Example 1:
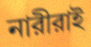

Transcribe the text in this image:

নারীরাই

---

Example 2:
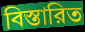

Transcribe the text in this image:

বিস্তারিত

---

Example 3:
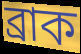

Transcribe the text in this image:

ব্রাক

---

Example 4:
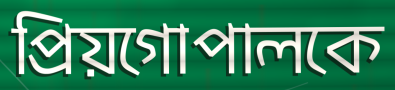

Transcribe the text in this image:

প্রিয়গোপালকে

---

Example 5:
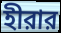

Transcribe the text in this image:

হীরার